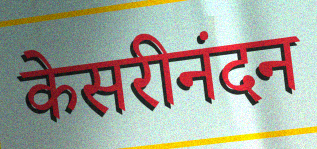
केसरीनंदन